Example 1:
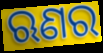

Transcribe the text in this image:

ଋଣର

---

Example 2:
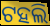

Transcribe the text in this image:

ଟହଲି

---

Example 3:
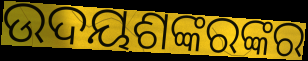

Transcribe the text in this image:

ଉଦୟଶଙ୍କରଙ୍କର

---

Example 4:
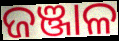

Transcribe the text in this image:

ଜଞ୍ଜାଳ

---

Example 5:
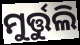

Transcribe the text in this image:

ମୁର୍ତ୍ତୁଲି